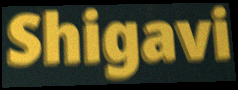
Shigavi